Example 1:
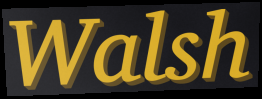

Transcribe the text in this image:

Walsh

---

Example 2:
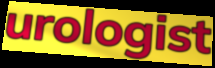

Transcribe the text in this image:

urologist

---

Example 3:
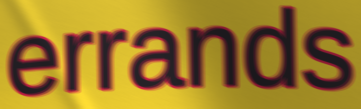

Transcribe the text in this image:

errands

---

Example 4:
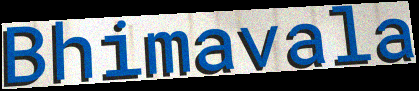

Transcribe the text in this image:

Bhimavala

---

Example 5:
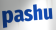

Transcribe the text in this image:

pashu